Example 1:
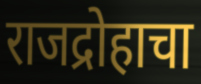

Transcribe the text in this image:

राजद्रोहाचा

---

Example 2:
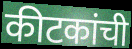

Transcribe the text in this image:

कीटकांची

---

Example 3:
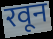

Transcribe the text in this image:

रवून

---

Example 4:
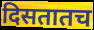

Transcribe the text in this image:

दिसतातच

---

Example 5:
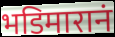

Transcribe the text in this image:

भडिमारानं